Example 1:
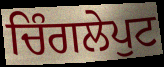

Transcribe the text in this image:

ਚਿੰਗਲੇਪੁਟ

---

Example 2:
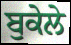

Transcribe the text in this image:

ਬੁਕੇਲੇ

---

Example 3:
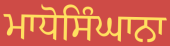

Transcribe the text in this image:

ਮਾਧੋਸਿੰਘਾਨਾ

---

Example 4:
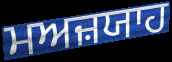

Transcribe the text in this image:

ਮਅਜ਼ਯਾਹ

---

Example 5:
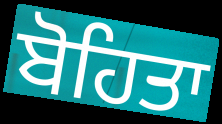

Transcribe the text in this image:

ਬੋਹਿਤਾ